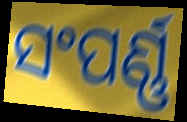
ସଂପର୍ଣ୍ଣ